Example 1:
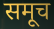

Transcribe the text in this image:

समूच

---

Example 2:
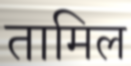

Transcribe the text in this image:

तामिल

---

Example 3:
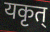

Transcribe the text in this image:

यकृत्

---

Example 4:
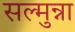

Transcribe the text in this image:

सल्मुन्ना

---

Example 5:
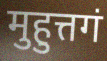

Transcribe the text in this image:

मुहुत्तगं